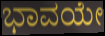
ಭಾವಯೇ